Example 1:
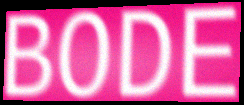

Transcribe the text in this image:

BODE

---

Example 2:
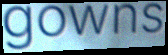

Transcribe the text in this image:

gowns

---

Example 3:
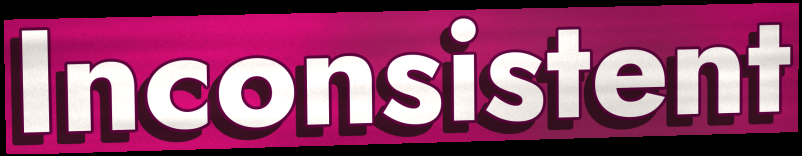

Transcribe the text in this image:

Inconsistent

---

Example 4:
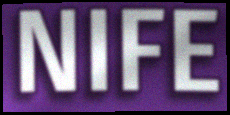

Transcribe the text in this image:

NIFE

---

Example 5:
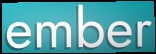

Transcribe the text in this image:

ember